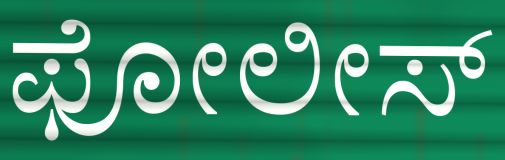
ಫೋಲೀಸ್